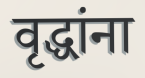
वृद्धांना